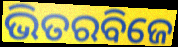
ଭିତରବିଜେ